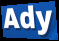
Ady